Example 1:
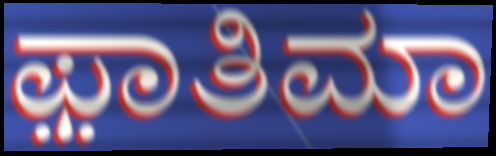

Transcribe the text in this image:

ಫ಼ಾತಿಮಾ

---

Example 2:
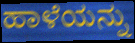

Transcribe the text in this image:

ಹಾಳೆಯನ್ನು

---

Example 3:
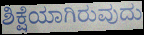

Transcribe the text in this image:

ಶಿಕ್ಷೆಯಾಗಿರುವುದು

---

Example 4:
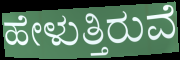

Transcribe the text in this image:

ಹೇಳುತ್ತಿರುವೆ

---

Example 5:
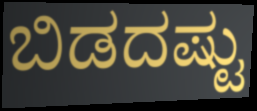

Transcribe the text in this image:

ಬಿಡದಷ್ಟು